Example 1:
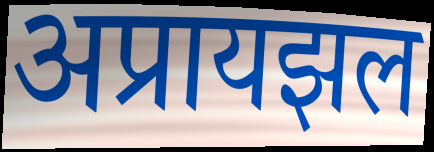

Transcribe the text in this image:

अप्रायझल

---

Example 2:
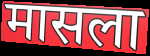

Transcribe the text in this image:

मासला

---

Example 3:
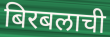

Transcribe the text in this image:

बिरबलाची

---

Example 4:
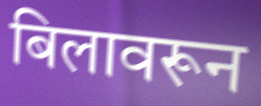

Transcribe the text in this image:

बिलावरून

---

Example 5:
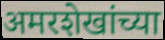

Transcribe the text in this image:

अमरशेखांच्या